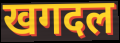
खगदल